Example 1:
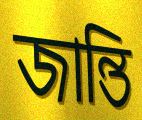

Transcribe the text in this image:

জান্তি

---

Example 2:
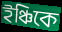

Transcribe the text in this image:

ইঞ্চিকে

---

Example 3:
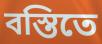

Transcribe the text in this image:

বস্তিতে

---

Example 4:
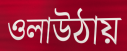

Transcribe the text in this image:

ওলাউঠায়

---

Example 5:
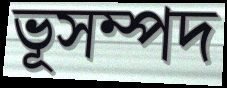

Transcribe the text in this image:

ভূসম্পদ